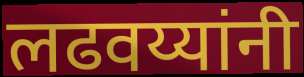
लढवय्यांनी